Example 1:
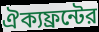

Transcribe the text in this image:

ঐক্যফ্রন্টের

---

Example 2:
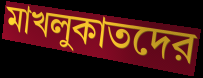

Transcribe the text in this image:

মাখলুকাতদের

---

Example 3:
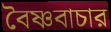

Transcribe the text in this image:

বৈষ্ণবাচার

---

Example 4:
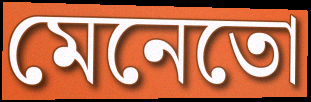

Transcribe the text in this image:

মেনেতো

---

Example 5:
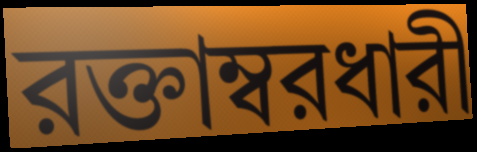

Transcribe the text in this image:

রক্তাম্বরধারী